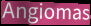
Angiomas